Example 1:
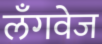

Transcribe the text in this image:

लॅंगवेज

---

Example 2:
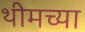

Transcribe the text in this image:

थीमच्या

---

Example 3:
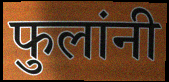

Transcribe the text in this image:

फुलांनी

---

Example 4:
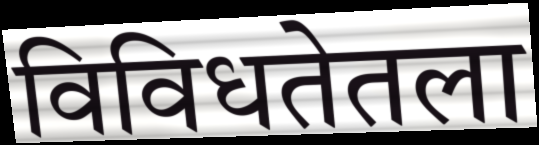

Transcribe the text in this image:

विविधतेतला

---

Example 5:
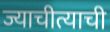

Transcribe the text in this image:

ज्याचीत्याची